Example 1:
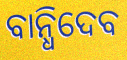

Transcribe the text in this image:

ବାନ୍ଧିଦେବ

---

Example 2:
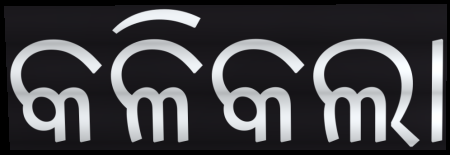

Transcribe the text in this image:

କଳିକଲା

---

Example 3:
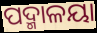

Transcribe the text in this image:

ପଦ୍ମାଳୟା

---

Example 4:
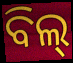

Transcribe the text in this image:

ବିଲ୍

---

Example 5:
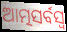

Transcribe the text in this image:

ଆତ୍ମସର୍ବସ୍ଵ